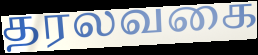
தரலவகை